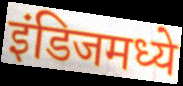
इंडिजमध्ये